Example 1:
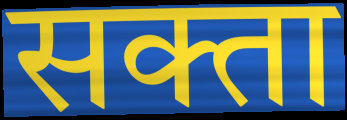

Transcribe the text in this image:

सक्‍ता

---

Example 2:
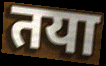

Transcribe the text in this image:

तया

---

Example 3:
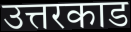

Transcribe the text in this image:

उत्तरकाड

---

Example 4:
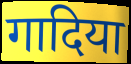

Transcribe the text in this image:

गादिया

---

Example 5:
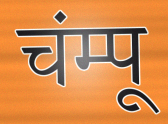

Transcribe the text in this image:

चंम्पू